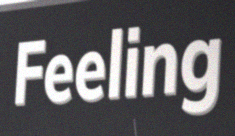
Feeling